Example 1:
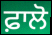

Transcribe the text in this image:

ਫ਼ਾਲੋ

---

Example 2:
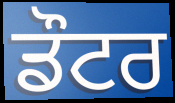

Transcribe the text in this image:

ਡੌਟਰ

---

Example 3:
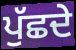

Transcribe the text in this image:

ਪੁੱਛਦੇ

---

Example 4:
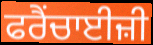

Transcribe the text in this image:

ਫਰੈਂਚਾਈਜ਼ੀ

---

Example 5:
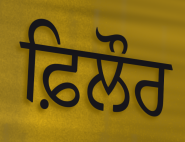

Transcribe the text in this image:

ਫ਼ਿਲੌਰ